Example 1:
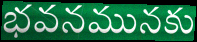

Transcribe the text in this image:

భవనమునకు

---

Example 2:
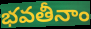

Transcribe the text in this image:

భవతీనాం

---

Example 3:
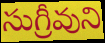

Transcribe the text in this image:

సుగ్రీవుని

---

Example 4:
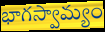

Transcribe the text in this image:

భాగస్వామ్యం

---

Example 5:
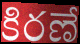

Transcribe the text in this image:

కిరణే